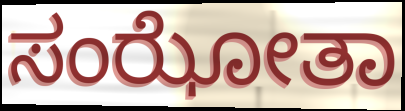
ಸಂಝೋತಾ